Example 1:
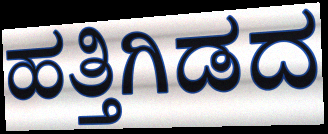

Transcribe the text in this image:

ಹತ್ತಿಗಿಡದ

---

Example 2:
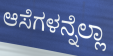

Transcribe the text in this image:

ಆಸೆಗಳನ್ನೆಲ್ಲಾ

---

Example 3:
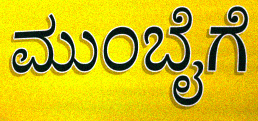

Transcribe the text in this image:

ಮುಂಬೈಗೆ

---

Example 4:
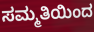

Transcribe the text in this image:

ಸಮ್ಮತಿಯಿಂದ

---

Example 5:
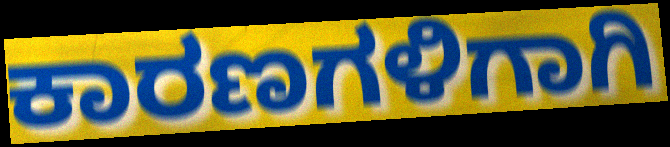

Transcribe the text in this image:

ಕಾರಣಗಳಿಗಾಗಿ